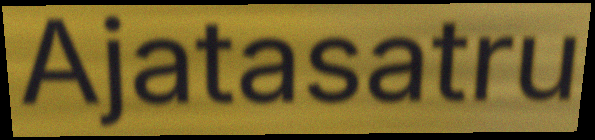
Ajatasatru